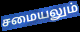
சமையலும்